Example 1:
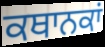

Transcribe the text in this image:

ਕਥਾਨਕਾਂ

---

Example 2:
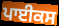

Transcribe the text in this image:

ਪਾਈਕਸ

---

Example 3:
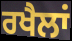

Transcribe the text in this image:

ਰਖੈਲਾਂ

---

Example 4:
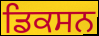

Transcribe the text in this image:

ਡਿਕਸਨ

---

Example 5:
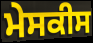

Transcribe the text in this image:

ਮੇਸਕੀਸ